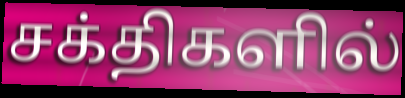
சக்திகளில்